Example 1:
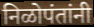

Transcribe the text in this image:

निळोपंतांनी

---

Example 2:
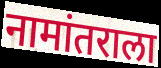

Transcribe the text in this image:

नामांतराला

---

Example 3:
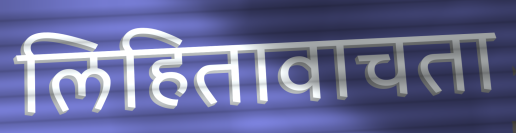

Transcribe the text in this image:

लिहितावाचता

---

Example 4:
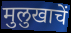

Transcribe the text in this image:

मुलुखाचें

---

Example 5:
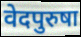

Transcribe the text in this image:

वेदपुरुषा